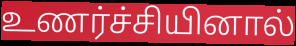
உணர்ச்சியினால்